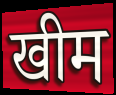
खीम